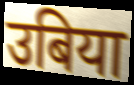
उबिया